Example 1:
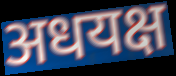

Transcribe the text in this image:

अधयक्ष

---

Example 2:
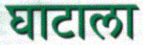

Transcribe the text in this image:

घाटाला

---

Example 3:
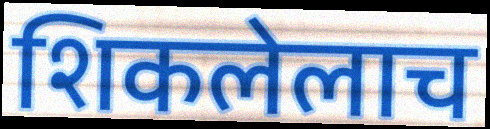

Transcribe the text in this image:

शिकलेलाच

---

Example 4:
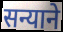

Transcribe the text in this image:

सन्याने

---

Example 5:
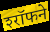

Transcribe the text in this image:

श्रॉफने